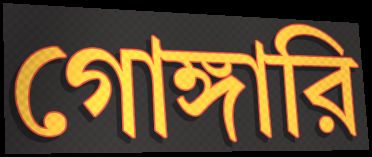
গোঙ্গারি